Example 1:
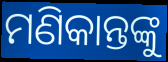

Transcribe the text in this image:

ମଣିକାନ୍ତଙ୍କୁ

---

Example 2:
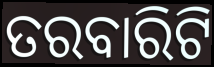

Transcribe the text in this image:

ତରବାରିଟି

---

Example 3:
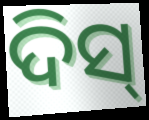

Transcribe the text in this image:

ଦିସ୍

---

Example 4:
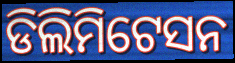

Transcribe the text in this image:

ଡିଲିମିଟେସନ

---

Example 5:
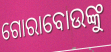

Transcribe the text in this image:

ଗୋରାବୋଉଙ୍କୁ